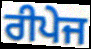
ਰੀਪੇਜ